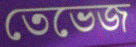
তেভেজ